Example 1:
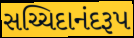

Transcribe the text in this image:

સચ્ચિદાનંદરૂપ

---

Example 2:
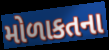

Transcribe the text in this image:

મોળાકતના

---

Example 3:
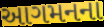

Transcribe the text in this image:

આગમનના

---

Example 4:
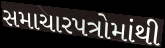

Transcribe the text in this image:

સમાચારપત્રોમાંથી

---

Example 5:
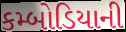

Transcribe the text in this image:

કમ્બોડિયાની